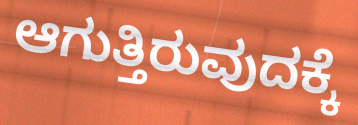
ಆಗುತ್ತಿರುವುದಕ್ಕೆ